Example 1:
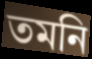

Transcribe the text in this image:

তমনি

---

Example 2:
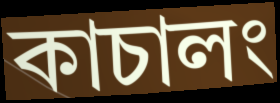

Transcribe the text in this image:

কাচালং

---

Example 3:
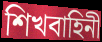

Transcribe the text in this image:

শিখবাহিনী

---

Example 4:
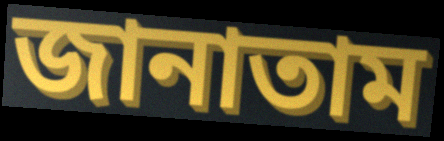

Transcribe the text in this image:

জানাতাম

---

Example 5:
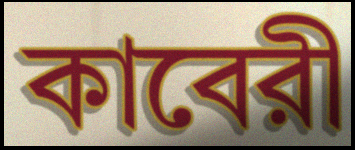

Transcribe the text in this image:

কাবেরী